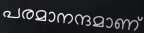
പരമാനന്ദമാണ്